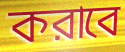
করাবে